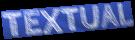
TEXTUAL